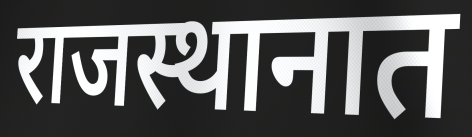
राजस्थानात